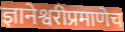
ज्ञानेश्वरीप्रमाणेच